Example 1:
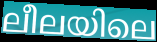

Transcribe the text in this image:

ലീലയിലെ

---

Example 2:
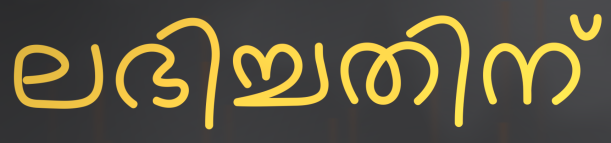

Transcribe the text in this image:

ലഭിച്ചതിന്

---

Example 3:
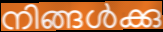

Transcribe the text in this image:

നിങ്ങൾക്കു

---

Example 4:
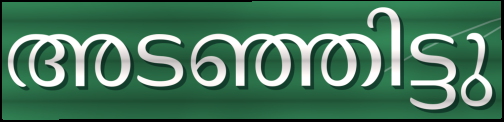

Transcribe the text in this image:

അടഞ്ഞിട്ടു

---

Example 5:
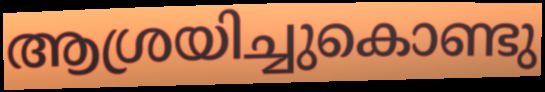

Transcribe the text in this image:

ആശ്രയിച്ചുകൊണ്ടു